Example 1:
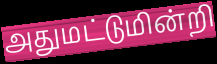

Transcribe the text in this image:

அதுமட்டுமின்றி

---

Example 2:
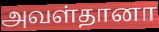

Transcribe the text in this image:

அவள்தானா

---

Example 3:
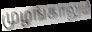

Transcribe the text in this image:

முழங்காலும்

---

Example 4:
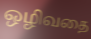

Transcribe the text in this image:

ஒழிவதை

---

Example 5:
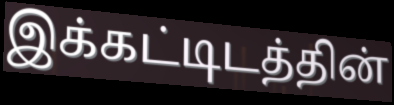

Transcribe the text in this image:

இக்கட்டிடத்தின்